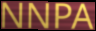
NNPA